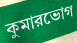
কুমারভোগ